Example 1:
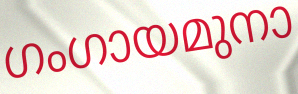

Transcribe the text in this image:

ഗംഗായമുനാ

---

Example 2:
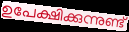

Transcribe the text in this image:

ഉപേക്ഷിക്കുന്നുണ്ട്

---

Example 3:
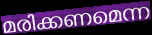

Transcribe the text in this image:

മരിക്കണമെന്ന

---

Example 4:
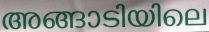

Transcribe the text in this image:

അങ്ങാടിയിലെ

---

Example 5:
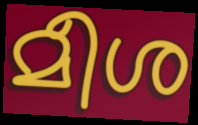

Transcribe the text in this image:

മീശ